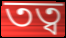
তত্ব